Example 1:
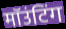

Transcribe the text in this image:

मॉउंटिंग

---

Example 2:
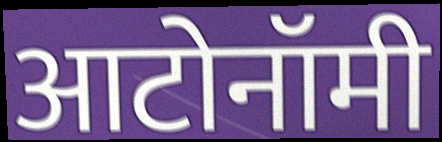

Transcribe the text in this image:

आटोनॉमी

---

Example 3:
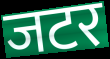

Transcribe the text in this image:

जटर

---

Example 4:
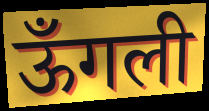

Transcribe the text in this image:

ऊँगली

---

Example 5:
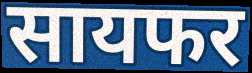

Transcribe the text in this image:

सायफर